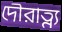
দৌরাত্ন্য